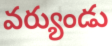
వర్యుండు